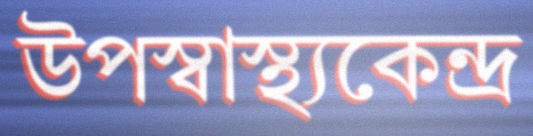
উপস্বাস্থ্যকেন্দ্র